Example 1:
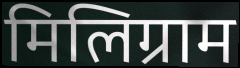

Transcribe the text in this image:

मिलिग्राम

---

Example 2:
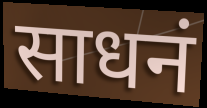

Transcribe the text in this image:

साधनं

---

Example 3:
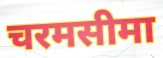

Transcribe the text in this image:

चरमसीमा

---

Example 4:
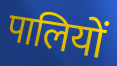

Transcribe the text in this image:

पालियों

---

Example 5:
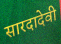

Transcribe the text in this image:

सारदादेवी